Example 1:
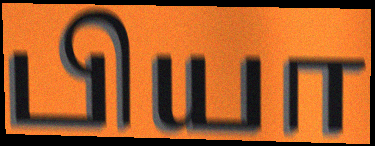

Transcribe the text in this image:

பியா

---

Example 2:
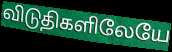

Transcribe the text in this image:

விடுதிகளிலேயே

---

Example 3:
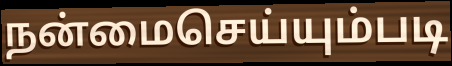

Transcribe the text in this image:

நன்மைசெய்யும்படி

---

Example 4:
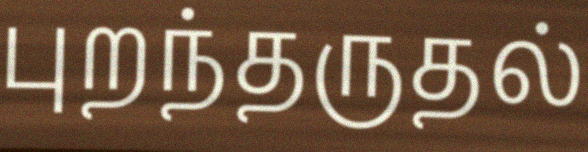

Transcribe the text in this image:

புறந்தருதல்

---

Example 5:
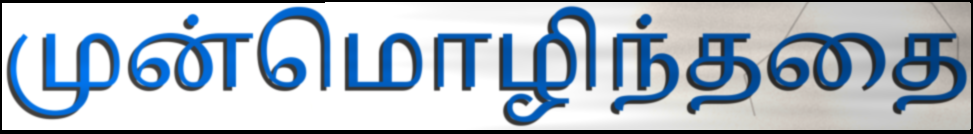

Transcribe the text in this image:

முன்மொழிந்ததை